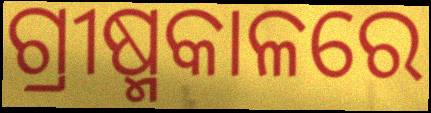
ଗ୍ରୀଷ୍ମକାଳରେ